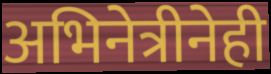
अभिनेत्रीनेही